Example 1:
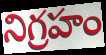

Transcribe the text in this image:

నిగ్రహం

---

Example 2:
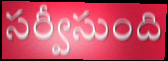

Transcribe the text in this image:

సర్వీసుంది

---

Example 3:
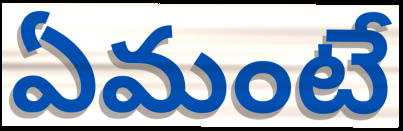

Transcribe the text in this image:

ఏమంటే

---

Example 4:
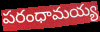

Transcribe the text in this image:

పరంధామయ్య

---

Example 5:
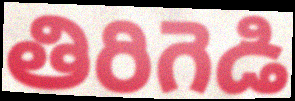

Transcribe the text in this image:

తిరిగెడి